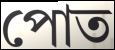
পোত